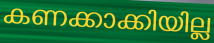
കണക്കാക്കിയില്ല